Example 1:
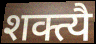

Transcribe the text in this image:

शक्त्यै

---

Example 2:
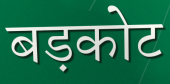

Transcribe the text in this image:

बड़कोट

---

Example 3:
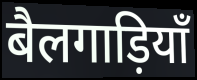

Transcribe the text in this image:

बैलगाड़ियाँ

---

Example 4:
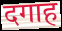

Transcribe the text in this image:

दगाह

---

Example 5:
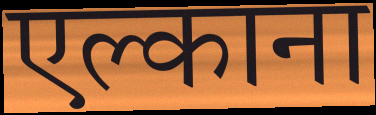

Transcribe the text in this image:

एल्काना